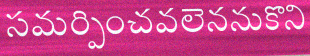
సమర్పించవలెననుకొని